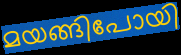
മയങ്ങിപോയി